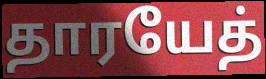
தாரயேத்